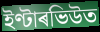
ইণ্টাৰভিউত